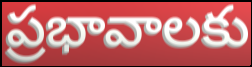
ప్రభావాలకు